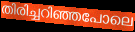
തിരിച്ചറിഞ്ഞപോലെ